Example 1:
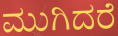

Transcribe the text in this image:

ಮುಗಿದರೆ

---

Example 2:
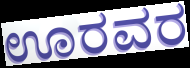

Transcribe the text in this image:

ಊರವರ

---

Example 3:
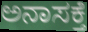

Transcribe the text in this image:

ಅನಾಸಕ್ತೆ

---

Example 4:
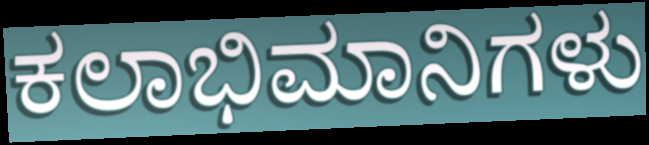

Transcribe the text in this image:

ಕಲಾಭಿಮಾನಿಗಳು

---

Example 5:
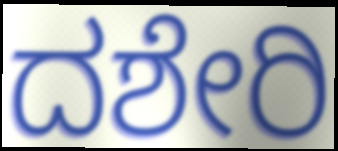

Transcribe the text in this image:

ದಶೇರಿ